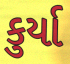
કુર્યા